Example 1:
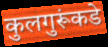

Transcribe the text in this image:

कुलगुरूंकडे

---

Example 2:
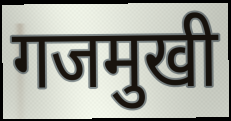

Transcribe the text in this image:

गजमुखी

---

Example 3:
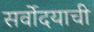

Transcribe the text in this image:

सर्वोदयाची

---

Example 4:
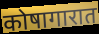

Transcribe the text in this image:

कोषागारात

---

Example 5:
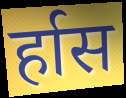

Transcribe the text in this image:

र्हास